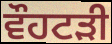
ਵੌਹਟੜੀ